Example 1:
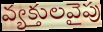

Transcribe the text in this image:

వ్యక్తులవైపు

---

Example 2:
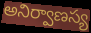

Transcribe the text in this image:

అనిర్వాణస్య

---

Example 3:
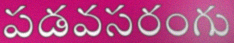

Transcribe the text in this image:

పడవసరంగు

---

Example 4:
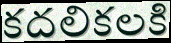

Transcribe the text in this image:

కదలికలకి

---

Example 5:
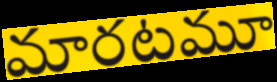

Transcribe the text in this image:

మారటమూ